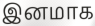
இனமாக